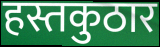
हस्तकुठार